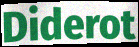
Diderot